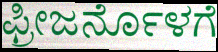
ಫ್ರೀಜರ್ನೊಳಗೆ